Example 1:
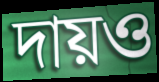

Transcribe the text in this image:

দায়ও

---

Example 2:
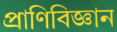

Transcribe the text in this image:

প্রাণিবিজ্ঞান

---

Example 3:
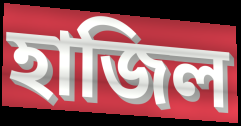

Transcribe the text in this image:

হাজিল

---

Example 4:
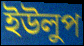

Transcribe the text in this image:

ইউলুপ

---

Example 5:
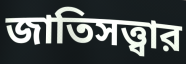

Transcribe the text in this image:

জাতিসত্ত্বার